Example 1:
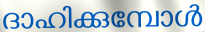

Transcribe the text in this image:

ദാഹിക്കുമ്പോൾ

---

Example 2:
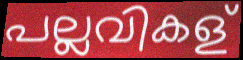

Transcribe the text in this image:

പല്ലവികള്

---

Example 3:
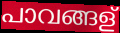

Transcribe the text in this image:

പാവങ്ങള്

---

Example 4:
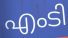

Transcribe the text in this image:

എംടി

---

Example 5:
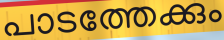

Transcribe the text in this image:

പാടത്തേക്കും